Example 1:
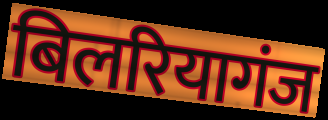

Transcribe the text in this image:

बिलरियागंज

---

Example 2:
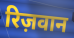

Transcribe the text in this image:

रिज़वान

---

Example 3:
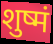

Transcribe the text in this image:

शुष्मं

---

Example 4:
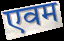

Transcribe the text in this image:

एवम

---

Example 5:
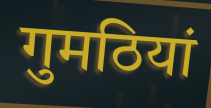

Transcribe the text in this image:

गुमठियां